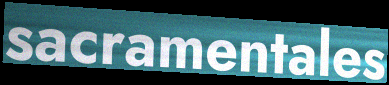
sacramentales